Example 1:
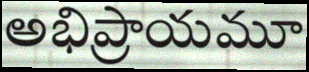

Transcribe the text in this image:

అభిప్రాయమూ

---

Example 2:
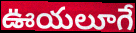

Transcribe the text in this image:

ఊయలూగే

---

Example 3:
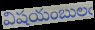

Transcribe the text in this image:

విషయంబులఁ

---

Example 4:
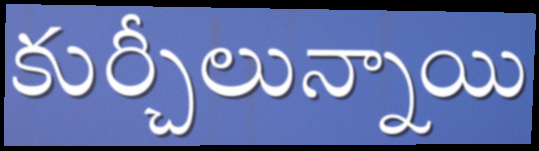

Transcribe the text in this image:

కుర్చీలున్నాయి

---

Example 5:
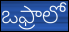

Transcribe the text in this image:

ఒఫ్రాలో